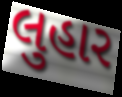
લુહાર